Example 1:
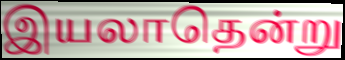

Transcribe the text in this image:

இயலாதென்று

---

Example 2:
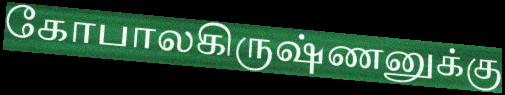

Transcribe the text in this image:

கோபாலகிருஷ்ணனுக்கு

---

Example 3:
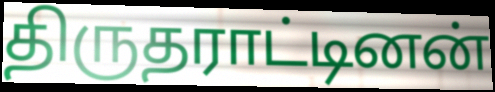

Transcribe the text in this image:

திருதராட்டினன்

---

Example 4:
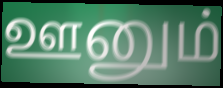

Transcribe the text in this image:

ஊனும்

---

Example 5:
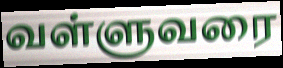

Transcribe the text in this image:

வள்ளுவரை